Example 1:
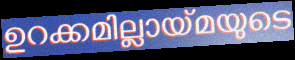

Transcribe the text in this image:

ഉറക്കമില്ലായ്മയുടെ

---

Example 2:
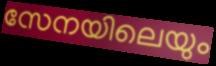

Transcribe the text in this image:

സേനയിലെയും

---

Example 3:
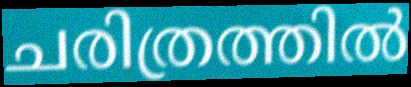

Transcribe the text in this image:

ചരിത്രത്തിൽ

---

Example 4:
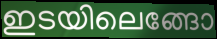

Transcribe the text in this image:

ഇടയിലെങ്ങോ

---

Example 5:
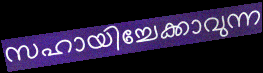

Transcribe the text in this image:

സഹായിച്ചേക്കാവുന്ന